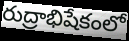
రుద్రాభిషేకంలో